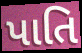
પાતિ